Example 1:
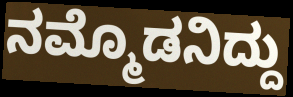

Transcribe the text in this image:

ನಮ್ಮೊಡನಿದ್ದು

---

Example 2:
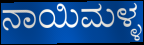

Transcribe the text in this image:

ನಾಯಿಮಳ್ಳ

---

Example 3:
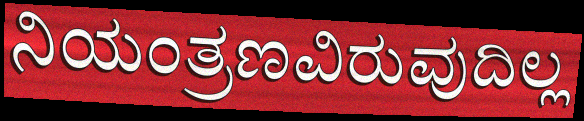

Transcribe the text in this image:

ನಿಯಂತ್ರಣವಿರುವುದಿಲ್ಲ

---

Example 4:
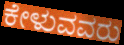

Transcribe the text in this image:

ಕೇಳುವವರು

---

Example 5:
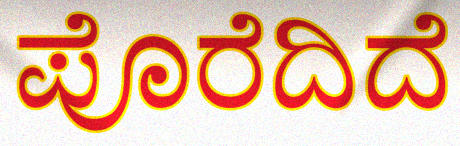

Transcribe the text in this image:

ಪೊರೆದಿದೆ